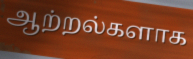
ஆற்றல்களாக